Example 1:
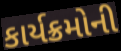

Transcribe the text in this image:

કાર્યક્રમોની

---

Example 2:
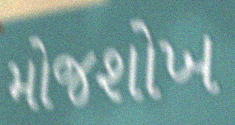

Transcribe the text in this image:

મોજશોખ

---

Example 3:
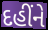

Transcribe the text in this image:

દહીંને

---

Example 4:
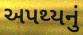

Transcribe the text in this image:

અપથ્યનું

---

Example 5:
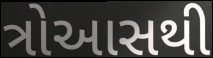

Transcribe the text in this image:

ત્રોઆસથી